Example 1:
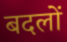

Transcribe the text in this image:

बदलों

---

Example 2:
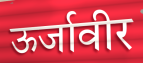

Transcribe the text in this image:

ऊर्जावीर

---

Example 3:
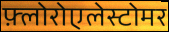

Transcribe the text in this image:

फ़्लोरोएलेस्टोमर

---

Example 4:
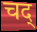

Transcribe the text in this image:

चद्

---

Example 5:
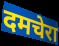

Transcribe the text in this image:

दमचेरा